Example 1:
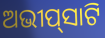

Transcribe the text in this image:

ଅଭୀପ୍‌ସାଟି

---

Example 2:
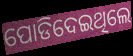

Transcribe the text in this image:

ପୋଡିଦେଇଥିଲେ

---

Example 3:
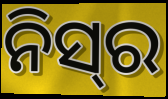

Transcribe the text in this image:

ନିସ୍‌ର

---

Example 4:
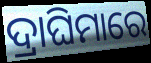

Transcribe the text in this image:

ଦ୍ରାଘିମାରେ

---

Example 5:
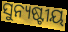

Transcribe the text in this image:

ସୁନ୍ୟଷ୍ଟୀୟ